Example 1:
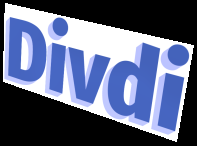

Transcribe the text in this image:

Divdi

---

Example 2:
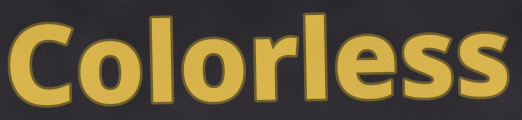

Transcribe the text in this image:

Colorless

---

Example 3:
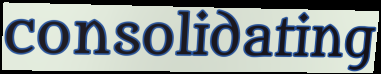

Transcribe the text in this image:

consolidating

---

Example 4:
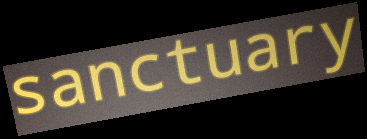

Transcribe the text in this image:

sanctuary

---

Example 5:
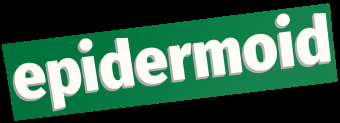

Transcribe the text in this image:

epidermoid